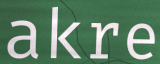
akre